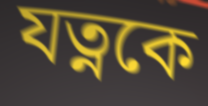
যত্নকে